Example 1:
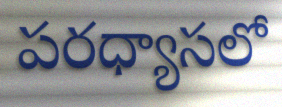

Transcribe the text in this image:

పరధ్యాసలో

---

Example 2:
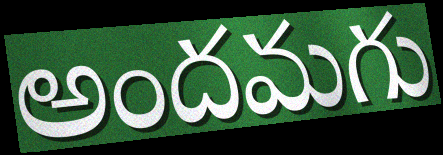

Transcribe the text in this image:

అందమగు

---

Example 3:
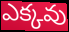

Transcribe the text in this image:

ఎక్కవు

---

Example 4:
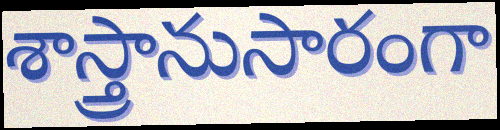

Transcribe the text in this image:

శాస్త్రానుసారంగా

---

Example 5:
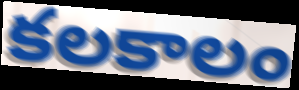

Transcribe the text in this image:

కలకాలం